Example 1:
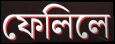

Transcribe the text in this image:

ফেলিলে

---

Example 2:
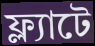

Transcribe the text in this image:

ফ্ল্যাটে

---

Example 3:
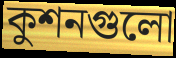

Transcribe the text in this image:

কুশনগুলো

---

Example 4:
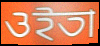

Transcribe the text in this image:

ওইতা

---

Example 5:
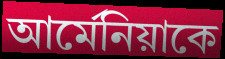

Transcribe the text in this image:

আর্মেনিয়াকে